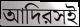
আদিরসই